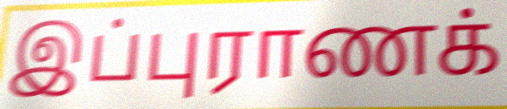
இப்புராணக்